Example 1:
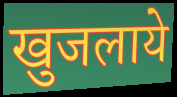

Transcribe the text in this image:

खुजलाये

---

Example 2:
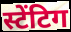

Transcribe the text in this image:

स्टेंटिग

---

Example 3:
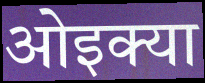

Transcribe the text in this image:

ओइक्या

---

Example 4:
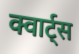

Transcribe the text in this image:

क्वार्ट्स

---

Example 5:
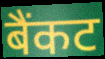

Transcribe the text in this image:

बैंकट